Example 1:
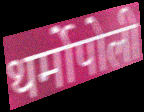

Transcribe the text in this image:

थर्मोपोली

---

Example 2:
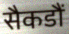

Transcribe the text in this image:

सैकडौं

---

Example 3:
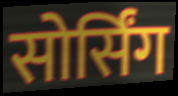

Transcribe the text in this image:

सोर्सिंग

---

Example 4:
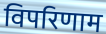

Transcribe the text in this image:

विपरिणाम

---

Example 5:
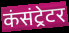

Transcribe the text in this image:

कंसंट्रेटर